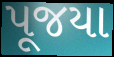
પૂજયા